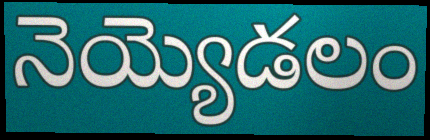
నెయ్యెడలం